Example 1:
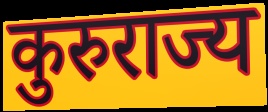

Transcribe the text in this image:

कुरुराज्य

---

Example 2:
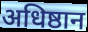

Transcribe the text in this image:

अधिष्ठान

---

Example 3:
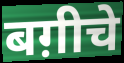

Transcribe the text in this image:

बग़ीचे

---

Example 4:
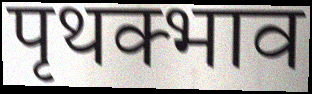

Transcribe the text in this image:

पृथक्भाव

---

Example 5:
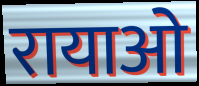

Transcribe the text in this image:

रायाओ